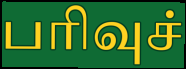
பரிவுச்